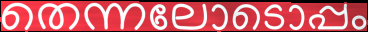
തെന്നലോടൊപ്പം